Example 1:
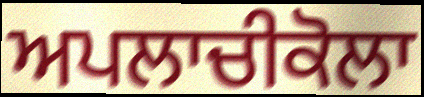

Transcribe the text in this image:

ਅਪਲਾਚੀਕੋਲਾ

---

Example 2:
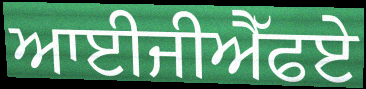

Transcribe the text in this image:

ਆਈਜੀਐੱਫਏ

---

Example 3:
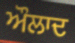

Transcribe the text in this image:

ਔਲਾਦ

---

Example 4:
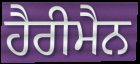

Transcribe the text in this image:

ਹੈਰੀਮੈਨ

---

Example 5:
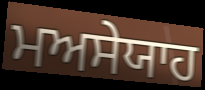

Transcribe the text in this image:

ਮਅਸੇਯਾਹ